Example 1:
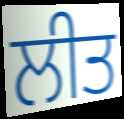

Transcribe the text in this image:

ਲੀਤ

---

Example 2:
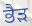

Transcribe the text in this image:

ਭੈੜ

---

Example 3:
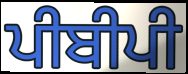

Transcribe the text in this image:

ਪੀਬੀਪੀ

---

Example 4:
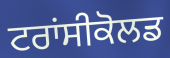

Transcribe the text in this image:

ਟਰਾਂਸੀਕੋਲਡ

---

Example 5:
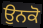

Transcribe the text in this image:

ਉਨਕੋ